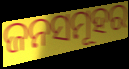
ଜନସମୂହର